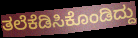
ತಲೆಕೆಡಿಸಿಕೊಂಡಿದ್ದು